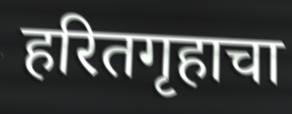
हरितगृहाचा